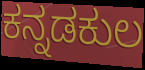
ಕನ್ನಡಕುಲ